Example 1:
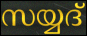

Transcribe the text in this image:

സയ്യദ്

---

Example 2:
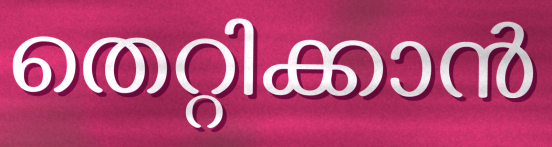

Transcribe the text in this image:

തെറ്റിക്കാൻ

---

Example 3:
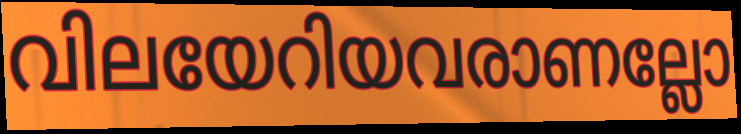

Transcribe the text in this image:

വിലയേറിയവരാണല്ലോ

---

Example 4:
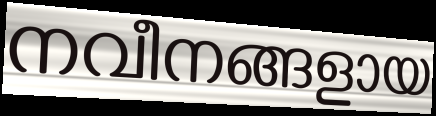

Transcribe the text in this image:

നവീനങ്ങളായ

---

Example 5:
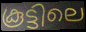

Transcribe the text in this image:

കൂട്ടിലെ